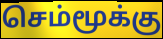
செம்மூக்கு